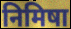
निमिषा